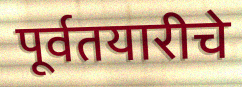
पूर्वतयारीचे